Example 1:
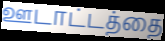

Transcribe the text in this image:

ஊடாட்டத்தை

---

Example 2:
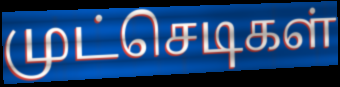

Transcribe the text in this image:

முட்செடிகள்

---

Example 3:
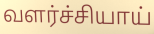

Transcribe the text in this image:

வளர்ச்சியாய்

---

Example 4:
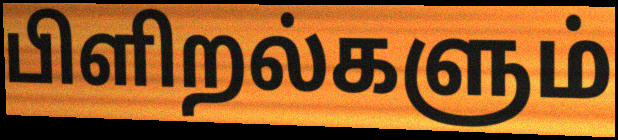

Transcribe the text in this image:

பிளிறல்களும்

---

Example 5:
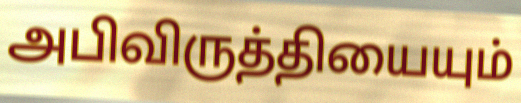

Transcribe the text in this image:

அபிவிருத்தியையும்